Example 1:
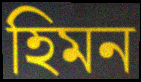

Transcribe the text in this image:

হিমন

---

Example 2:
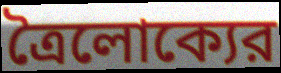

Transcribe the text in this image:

ত্রৈলোক্যের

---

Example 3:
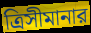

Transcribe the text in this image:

ত্রিসীমানার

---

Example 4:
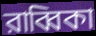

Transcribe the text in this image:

রাব্বিকা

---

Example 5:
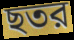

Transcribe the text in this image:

ছতর